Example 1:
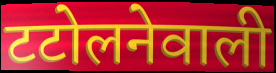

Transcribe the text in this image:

टटोलनेवाली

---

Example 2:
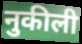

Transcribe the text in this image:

नुकीली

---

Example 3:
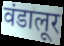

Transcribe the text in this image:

वंडालूर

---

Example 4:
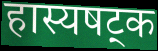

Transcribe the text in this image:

हास्यषट्क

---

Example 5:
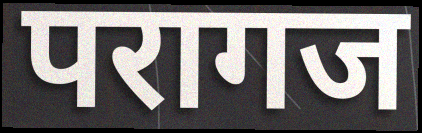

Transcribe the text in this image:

परागज